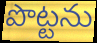
పొట్టను